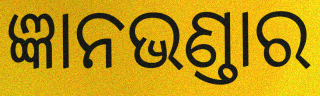
ଜ୍ଞାନଭଣ୍ଡାର